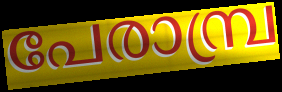
പേരാമ്പ്ര